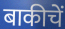
बाकीचें